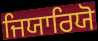
ਜਿਯਾਰਿਯੋ